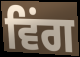
ਵਿਂਗ